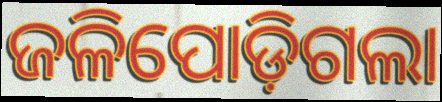
ଜଳିପୋଡ଼ିଗଲା